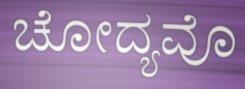
ಚೋದ್ಯವೊ